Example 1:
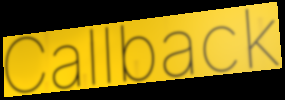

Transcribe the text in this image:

Callback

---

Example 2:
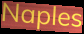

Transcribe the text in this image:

Naples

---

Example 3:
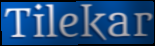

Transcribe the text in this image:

Tilekar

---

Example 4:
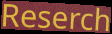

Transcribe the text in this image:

Reserch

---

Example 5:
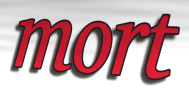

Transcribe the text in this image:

mort